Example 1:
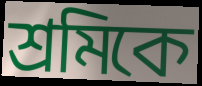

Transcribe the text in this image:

শ্ৰমিকে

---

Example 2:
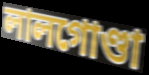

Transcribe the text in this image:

লালগোণ্ডা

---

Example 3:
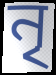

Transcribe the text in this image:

নৃ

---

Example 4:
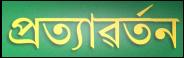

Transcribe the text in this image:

প্ৰত্যাৱৰ্তন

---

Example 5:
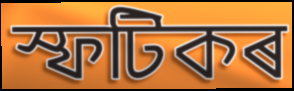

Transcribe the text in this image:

স্ফটিকৰ